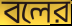
বলের